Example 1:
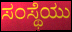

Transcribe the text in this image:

ಸಂಸ್ಥೆಯು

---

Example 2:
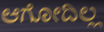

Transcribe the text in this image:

ಆಗೋದಿಲ್ಲ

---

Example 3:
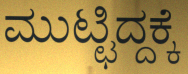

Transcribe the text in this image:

ಮುಟ್ಟಿದ್ದಕ್ಕೆ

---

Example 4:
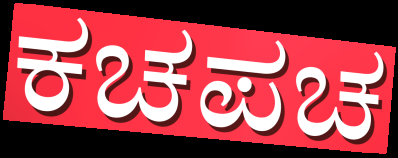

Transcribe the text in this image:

ಕಚಪಚ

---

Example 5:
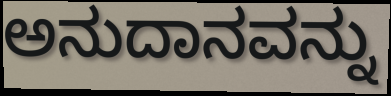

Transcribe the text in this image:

ಅನುದಾನವನ್ನು